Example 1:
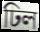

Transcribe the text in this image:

ঢিল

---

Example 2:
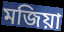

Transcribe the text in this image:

মজিয়া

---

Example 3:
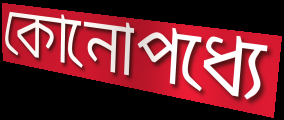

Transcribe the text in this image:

কোনোপধ্যে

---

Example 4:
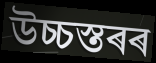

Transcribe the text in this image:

উচ্চস্তৰৰ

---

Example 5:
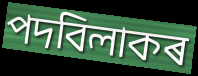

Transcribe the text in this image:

পদবিলাকৰ